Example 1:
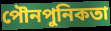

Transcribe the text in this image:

পৌনপুনিকতা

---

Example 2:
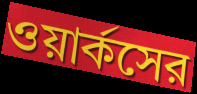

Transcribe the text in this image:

ওয়ার্কসের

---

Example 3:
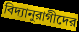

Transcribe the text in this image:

বিদ্যানুরাগীদের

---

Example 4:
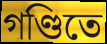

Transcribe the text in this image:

গণ্ডিতে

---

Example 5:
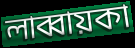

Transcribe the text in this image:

লাব্বায়কা